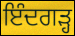
ਇੰਦਗੜ੍ਹ